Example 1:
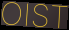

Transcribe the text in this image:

OIST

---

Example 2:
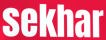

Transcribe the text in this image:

sekhar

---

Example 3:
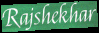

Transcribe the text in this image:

Rajshekhar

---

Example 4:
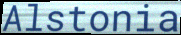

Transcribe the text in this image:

Alstonia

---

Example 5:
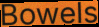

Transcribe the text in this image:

Bowels